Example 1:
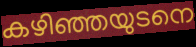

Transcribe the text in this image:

കഴിഞ്ഞയുടനെ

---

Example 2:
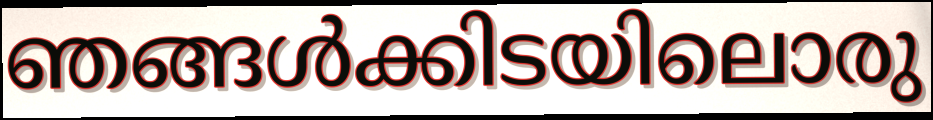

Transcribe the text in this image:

ഞങ്ങൾക്കിടയിലൊരു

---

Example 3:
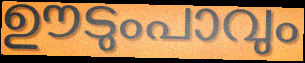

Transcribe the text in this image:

ഊടുംപാവും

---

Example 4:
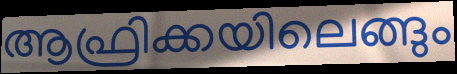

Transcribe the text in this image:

ആഫ്രിക്കയിലെങ്ങും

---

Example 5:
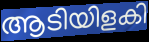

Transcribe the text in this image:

ആടിയിളകി